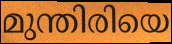
മുന്തിരിയെ